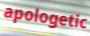
apologetic